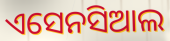
ଏସେନସିଆଲ